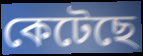
কেটেছে